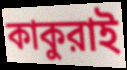
কাকুরাই